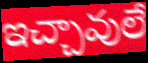
ఇచ్చావులే